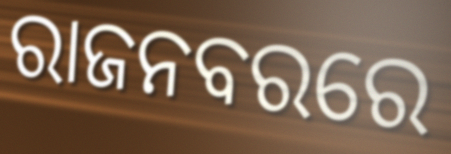
ରାଜନବରରେ